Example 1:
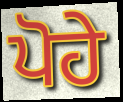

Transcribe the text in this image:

ਪੋਹੇ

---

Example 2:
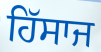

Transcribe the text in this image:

ਹਿੱਸਾਜ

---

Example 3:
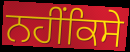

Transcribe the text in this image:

ਨਹੀਂਕਿਸੇ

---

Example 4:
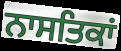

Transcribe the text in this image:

ਨਾਸਤਿਕਾਂ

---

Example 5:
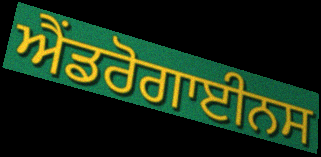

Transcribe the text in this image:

ਐਂਡਰੋਗਾਈਨਸ